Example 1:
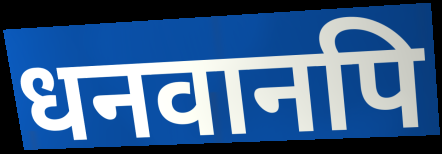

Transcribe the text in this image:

धनवानपि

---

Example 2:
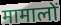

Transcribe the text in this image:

मामालों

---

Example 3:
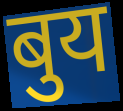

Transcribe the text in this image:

बुय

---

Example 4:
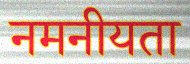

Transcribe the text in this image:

नमनीयता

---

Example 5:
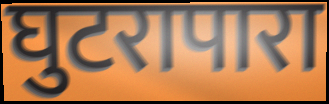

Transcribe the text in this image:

घुटरापारा